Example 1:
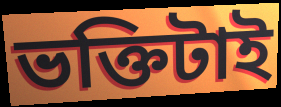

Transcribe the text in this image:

ভক্তিটাই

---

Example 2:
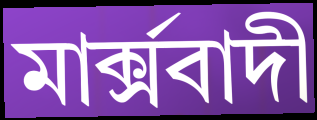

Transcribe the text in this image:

মার্ক্সবাদী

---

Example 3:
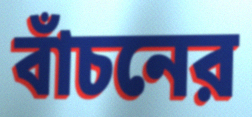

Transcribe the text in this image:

বাঁচনের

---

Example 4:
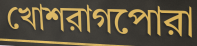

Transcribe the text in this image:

খোশরাগপোরা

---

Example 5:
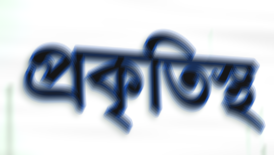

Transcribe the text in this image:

প্রকৃতিস্থ